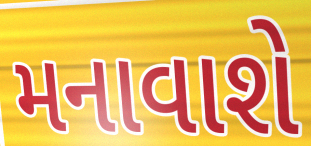
મનાવાશે